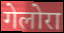
गेलोरा